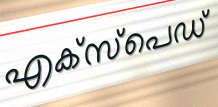
എക്സ്പെഡ്